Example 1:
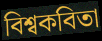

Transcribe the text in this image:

বিশ্বকবিতা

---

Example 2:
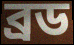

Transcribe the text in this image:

ব্রড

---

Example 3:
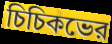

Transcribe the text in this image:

চিচিকভের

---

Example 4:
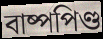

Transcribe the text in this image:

বাষ্পপিণ্ড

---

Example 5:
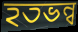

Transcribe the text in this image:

হতভন্ব